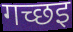
गच्छइ